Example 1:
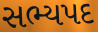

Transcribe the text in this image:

સભ્યપદ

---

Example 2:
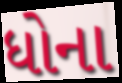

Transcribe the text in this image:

ધોના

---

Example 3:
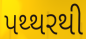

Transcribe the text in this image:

પથ્થરથી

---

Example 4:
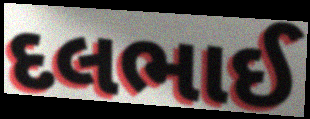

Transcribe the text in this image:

દલભાઈ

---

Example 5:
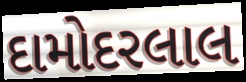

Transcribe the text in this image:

દામોદરલાલ